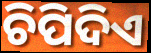
ଚିପିଦିଏ